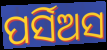
ପର୍ସିଅସ